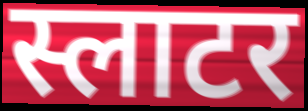
स्लाटर